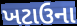
ખટાઉના